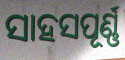
ସାହସପୂର୍ଣ୍ଣ